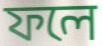
ফলে